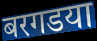
बरगडया